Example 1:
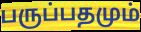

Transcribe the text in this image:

பருப்பதமும்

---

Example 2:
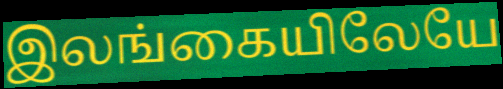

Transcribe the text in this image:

இலங்கையிலேயே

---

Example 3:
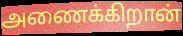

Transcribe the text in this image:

அணைக்கிறான்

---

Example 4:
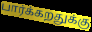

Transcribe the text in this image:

பார்க்கறதுக்கு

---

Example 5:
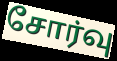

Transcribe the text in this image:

சோர்வு